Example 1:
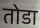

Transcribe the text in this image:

तोडा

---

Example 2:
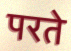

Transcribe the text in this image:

परते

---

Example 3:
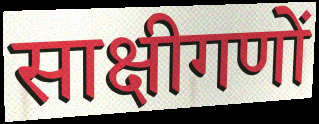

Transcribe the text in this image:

साक्षीगणों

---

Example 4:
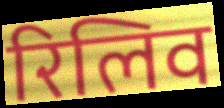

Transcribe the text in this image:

रिलिव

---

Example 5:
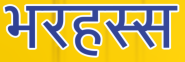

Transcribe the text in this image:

भरहस्स